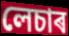
লেচাৰ